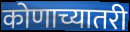
कोणाच्यातरी